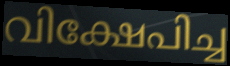
വിക്ഷേപിച്ച